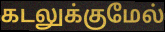
கடலுக்குமேல்